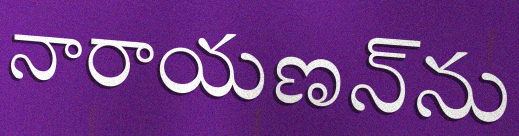
నారాయణన్‌ను